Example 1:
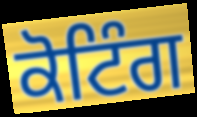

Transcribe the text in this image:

ਕੋਟਿੰਗ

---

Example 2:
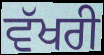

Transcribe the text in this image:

ਵੱਖਰੀ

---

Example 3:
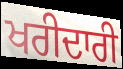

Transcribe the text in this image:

ਖਰੀਦਾਰੀ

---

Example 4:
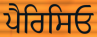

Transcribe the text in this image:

ਪੈਰਿਸਿਓ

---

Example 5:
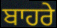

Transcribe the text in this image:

ਬਾਹਰੇ